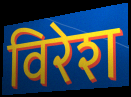
विरेश